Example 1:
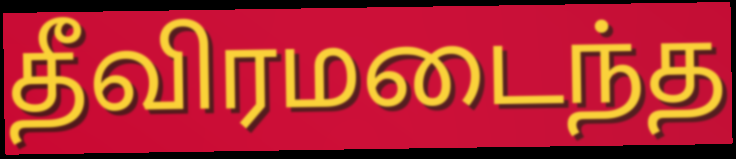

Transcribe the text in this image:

தீவிரமடைந்த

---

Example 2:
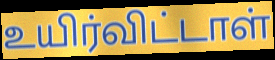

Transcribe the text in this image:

உயிர்விட்டாள்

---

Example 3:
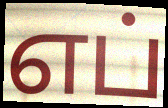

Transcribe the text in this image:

எப்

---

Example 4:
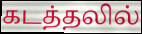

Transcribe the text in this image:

கடத்தலில்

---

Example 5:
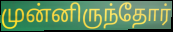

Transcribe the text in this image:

முன்னிருந்தோர்